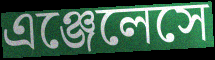
এঞ্জেলেসে